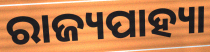
ରାଜ୍ୟପାହ୍ୟା